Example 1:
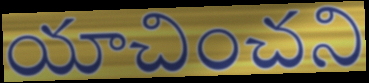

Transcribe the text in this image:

యాచించని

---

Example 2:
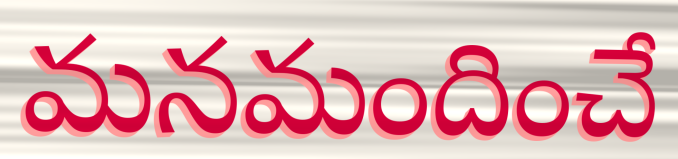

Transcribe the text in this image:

మనమందించే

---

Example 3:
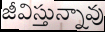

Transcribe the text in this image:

జీవిస్తున్నావు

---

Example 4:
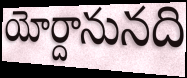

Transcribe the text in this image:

యోర్దానునది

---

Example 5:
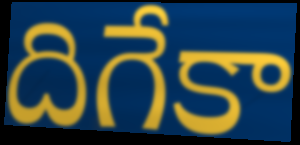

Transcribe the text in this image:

దిగేకా